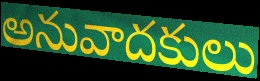
అనువాదకులు